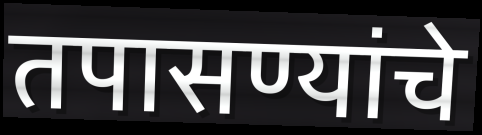
तपासण्यांचे